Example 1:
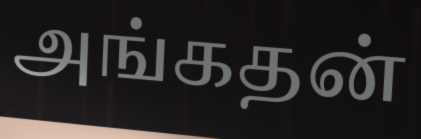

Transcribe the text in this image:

அங்கதன்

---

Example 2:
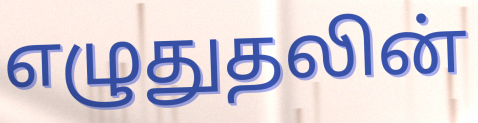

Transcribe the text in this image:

எழுதுதலின்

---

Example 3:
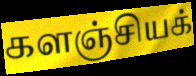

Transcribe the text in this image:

களஞ்சியக்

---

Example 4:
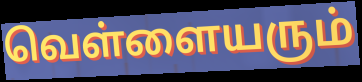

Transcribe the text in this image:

வெள்ளையரும்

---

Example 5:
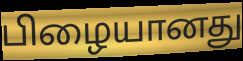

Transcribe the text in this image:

பிழையானது